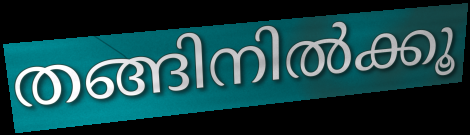
തങ്ങിനിൽക്കൂ